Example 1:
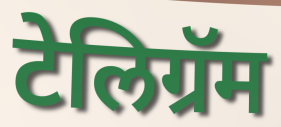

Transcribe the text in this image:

टेलिग्रॅम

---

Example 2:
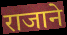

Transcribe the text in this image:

राजाने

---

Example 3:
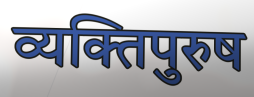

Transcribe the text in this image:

व्यक्तिपुरुष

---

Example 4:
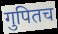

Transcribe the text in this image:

गुपितच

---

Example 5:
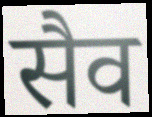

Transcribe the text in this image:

सैव